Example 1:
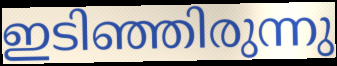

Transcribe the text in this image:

ഇടിഞ്ഞിരുന്നു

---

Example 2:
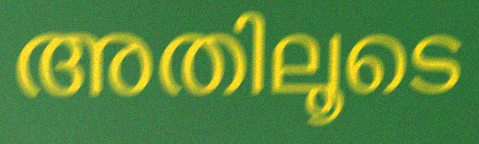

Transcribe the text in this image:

അതിലൂടെ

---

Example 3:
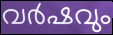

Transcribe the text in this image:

വർഷവും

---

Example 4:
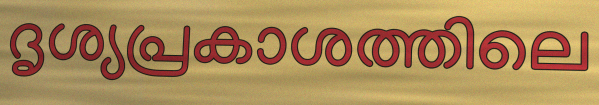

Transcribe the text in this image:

ദൃശ്യപ്രകാശത്തിലെ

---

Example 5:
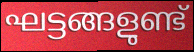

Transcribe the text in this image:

ഘട്ടങ്ങളുണ്ട്